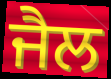
ਜੈਲ